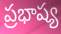
ప్రభాష్య